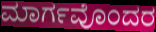
ಮಾರ್ಗವೊಂದರ